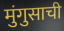
मुंगुसाची